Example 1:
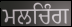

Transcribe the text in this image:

ਮਲਚਿੰਗ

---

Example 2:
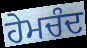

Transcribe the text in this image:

ਹੇਮਚੰਦ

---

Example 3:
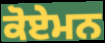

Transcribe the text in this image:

ਕੋਏਮਨ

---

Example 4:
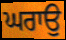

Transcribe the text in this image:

ਘਰਾਉ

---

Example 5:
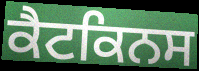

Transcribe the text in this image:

ਕੈਟਕਿਨਸ